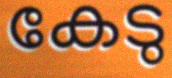
കേടു